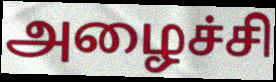
அழைச்சி